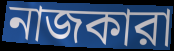
নাজকারা